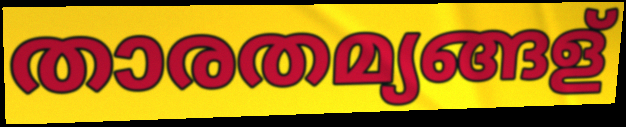
താരതമ്യങ്ങള്